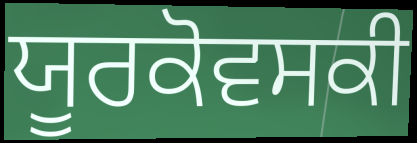
ਯੂਰਕੋਵਸਕੀ